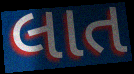
લાત